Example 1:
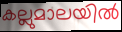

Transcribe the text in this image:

കല്ലുമാലയിൽ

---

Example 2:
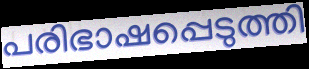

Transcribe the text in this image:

പരിഭാഷപ്പെടുത്തി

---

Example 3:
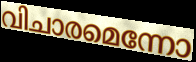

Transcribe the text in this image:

വിചാരമെന്നോ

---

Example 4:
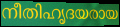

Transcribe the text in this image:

നീതിഹൃദയരായ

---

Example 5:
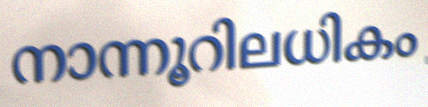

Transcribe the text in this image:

നാന്നൂറിലധികം